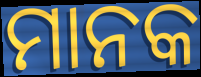
ମାନକ